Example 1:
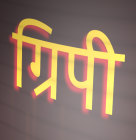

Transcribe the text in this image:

ग्रिपी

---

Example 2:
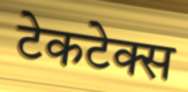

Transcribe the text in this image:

टेकटेक्स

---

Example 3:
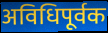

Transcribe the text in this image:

अविधिपूर्वक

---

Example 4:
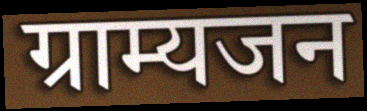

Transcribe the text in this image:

ग्राम्यजन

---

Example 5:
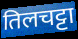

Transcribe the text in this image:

तिलचट्टा